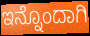
ಇನ್ನೊಂದಾಗಿ